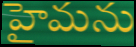
హైమను